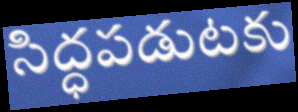
సిద్ధపడుటకు